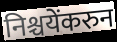
निश्चयेंकरुन